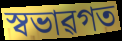
স্বভাৱগত